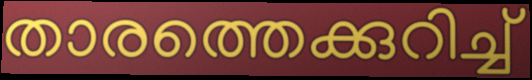
താരത്തെക്കുറിച്ച്